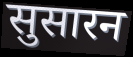
सुसारन